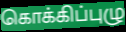
கொக்கிப்புழு